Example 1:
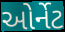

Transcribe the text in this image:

ઓર્નેટ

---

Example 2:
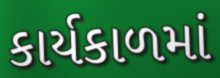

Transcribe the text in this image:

કાર્યકાળમાં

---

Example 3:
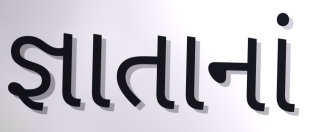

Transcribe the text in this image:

જ્ઞાતાનાં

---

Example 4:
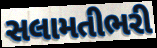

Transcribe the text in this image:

સલામતીભરી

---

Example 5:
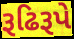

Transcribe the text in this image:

રૂઢિરૂપે